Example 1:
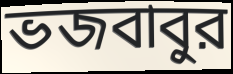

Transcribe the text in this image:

ভজবাবুর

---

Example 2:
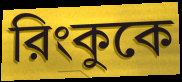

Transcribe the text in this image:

রিংকুকে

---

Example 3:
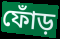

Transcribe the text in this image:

ফোঁড়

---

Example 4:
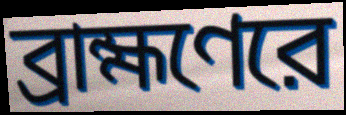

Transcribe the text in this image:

ব্রাহ্মণেরে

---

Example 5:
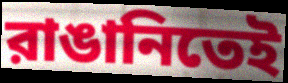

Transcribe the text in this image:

রাঙানিতেই